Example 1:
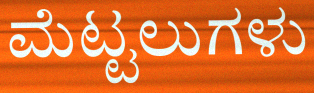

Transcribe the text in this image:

ಮೆಟ್ಟಲುಗಳು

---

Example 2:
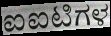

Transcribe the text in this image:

ಐಐಟಿಗಳ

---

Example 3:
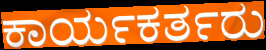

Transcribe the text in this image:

ಕಾರ್ಯಕರ್ತರು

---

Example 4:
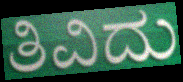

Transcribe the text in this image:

ತಿವಿದು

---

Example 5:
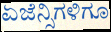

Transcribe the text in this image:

ಏಜೆನ್ಸಿಗಳಿಗೂ